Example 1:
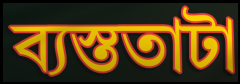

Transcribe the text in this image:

ব্যস্ততাটা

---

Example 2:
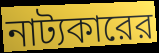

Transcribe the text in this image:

নাট্যকারের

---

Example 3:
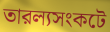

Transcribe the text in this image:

তারল্যসংকটে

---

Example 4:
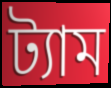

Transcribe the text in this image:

ট্যাম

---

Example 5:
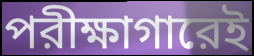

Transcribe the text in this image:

পরীক্ষাগারেই